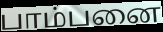
பாம்பனை